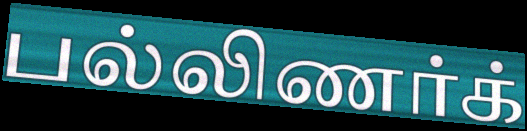
பல்லிணர்க்